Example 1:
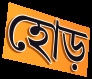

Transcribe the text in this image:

হোড়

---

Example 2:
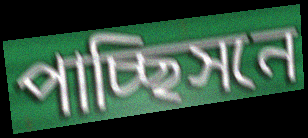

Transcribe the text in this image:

পাচ্ছিসনে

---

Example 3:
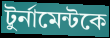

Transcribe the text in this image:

টুর্নামেন্টকে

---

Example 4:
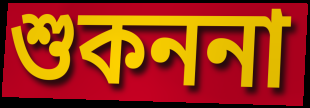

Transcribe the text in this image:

শুকননা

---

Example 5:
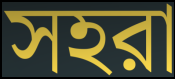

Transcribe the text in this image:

সহরা